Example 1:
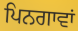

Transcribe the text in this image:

ਪਿਨਗਾਵਾਂ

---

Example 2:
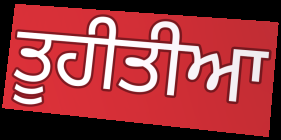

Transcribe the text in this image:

ਤੂਹੀਤੀਆ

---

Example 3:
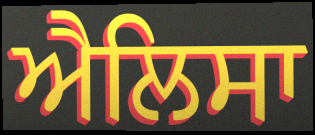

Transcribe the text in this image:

ਐਲਿਸਾ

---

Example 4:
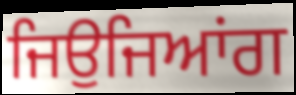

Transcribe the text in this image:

ਜਿਉਜਿਆਂਗ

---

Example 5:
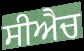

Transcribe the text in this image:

ਸੀਐਚ